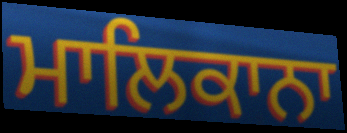
ਮਾਲਿਕਾਨਾ